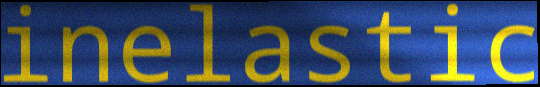
inelastic